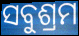
ସବୁଶ୍ରମ